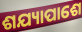
ଶଯ୍ୟାପାଶେ